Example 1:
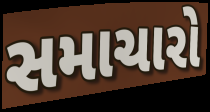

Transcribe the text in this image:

સમાચારો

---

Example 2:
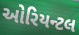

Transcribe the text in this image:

ઓરિયન્ટલ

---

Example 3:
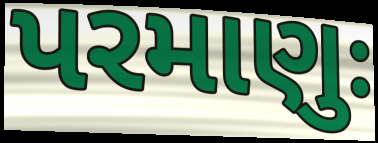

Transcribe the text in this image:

પરમાણુઃ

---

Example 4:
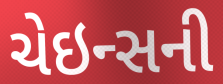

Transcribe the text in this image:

ચેઇન્સની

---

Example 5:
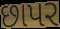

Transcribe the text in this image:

છાપર